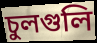
চুলগুলি